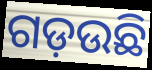
ଗଡ଼ଉଛି